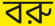
বরু